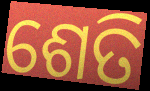
ଶେତି